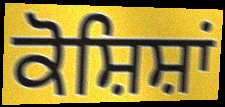
ਕੋਸ਼ਿਸ਼ਾਂ